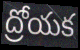
ద్రోయక